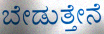
ಬೇಡುತ್ತೇನೆ